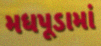
મધપૂડામાં